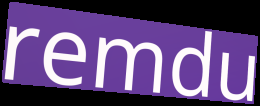
remdu